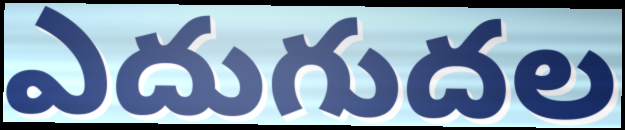
ఎదుగుదల